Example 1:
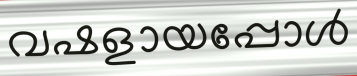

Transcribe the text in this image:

വഷളായപ്പോൾ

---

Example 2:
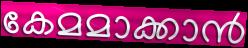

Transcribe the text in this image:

കേമമാക്കാൻ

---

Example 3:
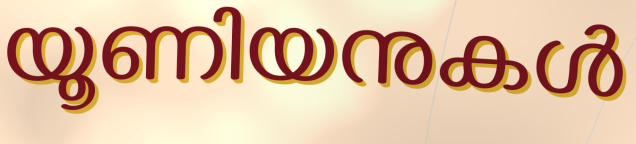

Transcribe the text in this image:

യൂണിയനുകൾ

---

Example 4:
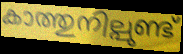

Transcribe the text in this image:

കാത്തുനില്പുണ്ട്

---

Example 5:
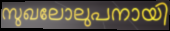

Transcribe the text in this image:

സുഖലോലുപനായി